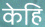
केहि